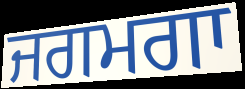
ਜਗਮਗਾ